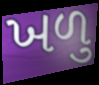
ખળુ